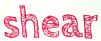
shear